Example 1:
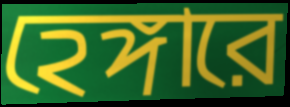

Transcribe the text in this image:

হেঙ্গারে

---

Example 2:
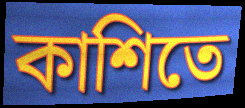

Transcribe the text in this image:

কাশিতে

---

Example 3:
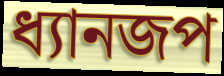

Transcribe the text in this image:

ধ্যানজপ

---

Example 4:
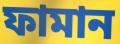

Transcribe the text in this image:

ফামান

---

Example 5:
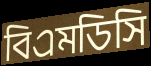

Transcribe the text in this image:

বিএমডিসি